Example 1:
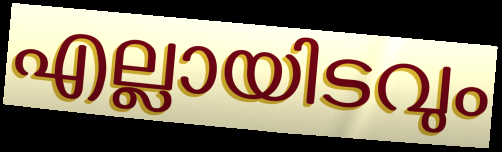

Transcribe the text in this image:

എല്ലായിടവും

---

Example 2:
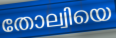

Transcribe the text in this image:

തോല്വിയെ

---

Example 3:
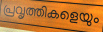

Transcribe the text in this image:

പ്രവൃത്തികളെയും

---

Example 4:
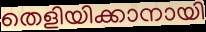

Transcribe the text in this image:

തെളിയിക്കാനായി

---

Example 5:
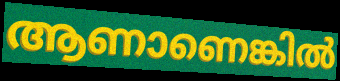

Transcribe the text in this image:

ആണാണെങ്കിൽ